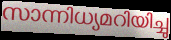
സാന്നിധ്യമറിയിച്ചു